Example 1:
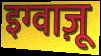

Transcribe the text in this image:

इग्वाज़ू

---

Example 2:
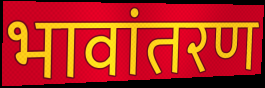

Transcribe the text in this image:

भावांतरण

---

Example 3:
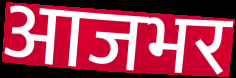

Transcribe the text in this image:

आजभर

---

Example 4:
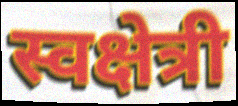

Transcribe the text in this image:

स्वक्षेत्री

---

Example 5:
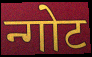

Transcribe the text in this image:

न्गोट